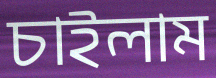
চাইলাম